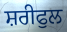
ਸ਼ਰੀਫੁਲ